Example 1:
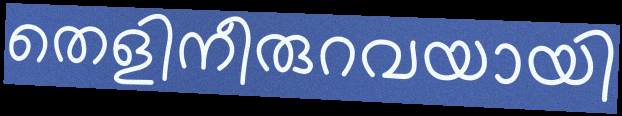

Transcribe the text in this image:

തെളിനീരുറവയായി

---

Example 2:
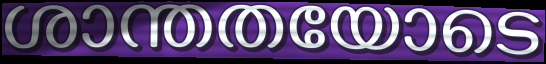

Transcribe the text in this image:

ശാന്തതയോടെ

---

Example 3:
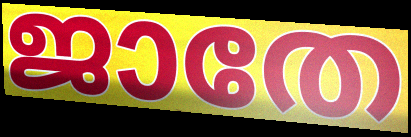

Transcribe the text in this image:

ജാതേ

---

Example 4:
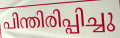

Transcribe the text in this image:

പിന്തിരിപ്പിച്ചു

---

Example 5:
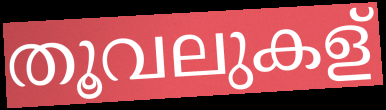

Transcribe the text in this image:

തൂവലുകള്